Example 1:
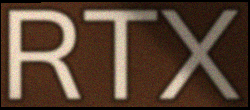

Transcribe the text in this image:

RTX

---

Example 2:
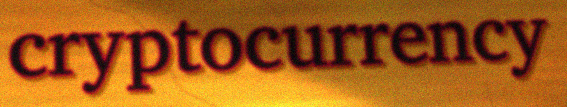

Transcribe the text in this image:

cryptocurrency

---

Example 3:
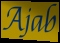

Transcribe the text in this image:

Ajab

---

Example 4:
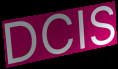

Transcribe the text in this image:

DCIS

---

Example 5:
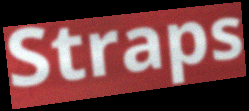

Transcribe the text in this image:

Straps